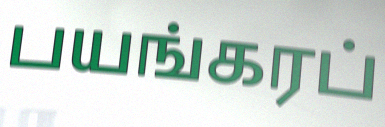
பயங்கரப்